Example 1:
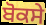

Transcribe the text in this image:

ਬੋਕਸੇ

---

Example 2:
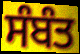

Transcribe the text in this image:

ਸੰਬੰਤ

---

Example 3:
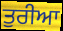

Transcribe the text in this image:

ਤੁਰੀਆ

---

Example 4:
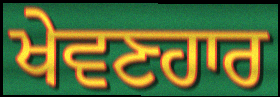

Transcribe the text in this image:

ਖੇਵਣਹਾਰ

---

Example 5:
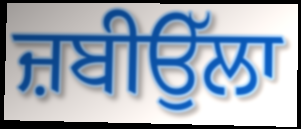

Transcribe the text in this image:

ਜ਼ਬੀਉੱਲਾ